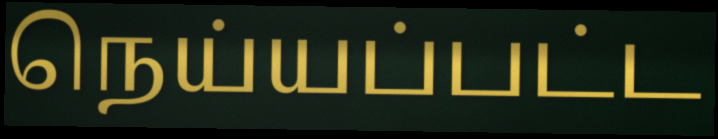
நெய்யப்பட்ட